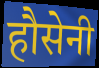
हौसेनी